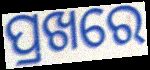
ପ୍ରଖରେ